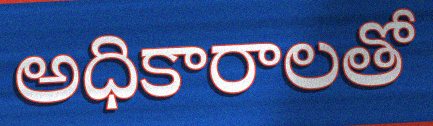
అధికారాలతో